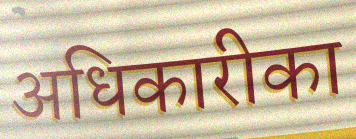
अधिकारीका